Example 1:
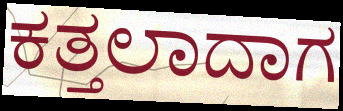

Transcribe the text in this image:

ಕತ್ತಲಾದಾಗ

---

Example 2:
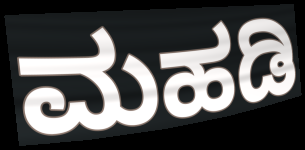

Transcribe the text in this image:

ಮಹಡಿ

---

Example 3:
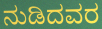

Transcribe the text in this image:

ನುಡಿದವರ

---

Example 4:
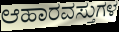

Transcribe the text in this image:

ಆಹಾರವಸ್ತುಗಳ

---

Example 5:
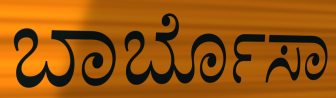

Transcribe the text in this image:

ಬಾರ್ಬೊಸಾ